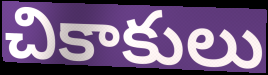
చికాకులు